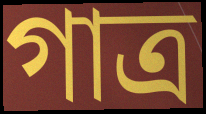
গাত্র